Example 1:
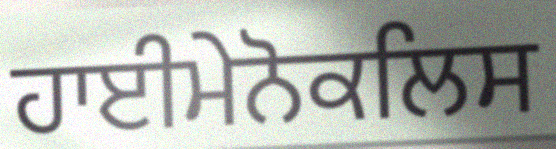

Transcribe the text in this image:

ਹਾਈਮੇਨੋਕਲਿਸ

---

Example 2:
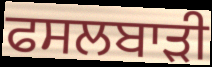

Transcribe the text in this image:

ਫਸਲਬਾੜੀ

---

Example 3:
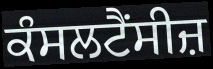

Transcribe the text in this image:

ਕੰਸਲਟੈਂਸੀਜ਼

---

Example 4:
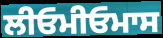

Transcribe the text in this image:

ਲੀਓਮੀਓਮਾਸ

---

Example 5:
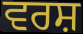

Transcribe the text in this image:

ਵਰਸ਼